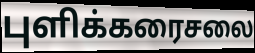
புளிக்கரைசலை